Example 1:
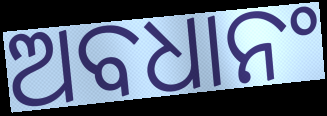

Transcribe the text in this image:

ଅବଧାନଂ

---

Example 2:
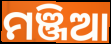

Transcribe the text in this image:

ମଞ୍ଜିଆ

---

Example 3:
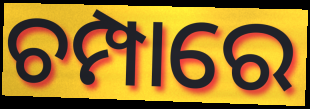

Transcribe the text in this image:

ଚମ୍ପାରେ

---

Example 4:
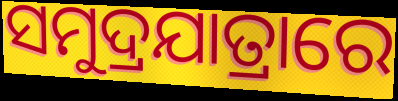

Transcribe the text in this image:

ସମୁଦ୍ରଯାତ୍ରାରେ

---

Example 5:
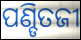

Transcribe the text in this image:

ପଣ୍ଡିତଜୀ